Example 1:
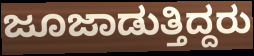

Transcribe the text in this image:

ಜೂಜಾಡುತ್ತಿದ್ದರು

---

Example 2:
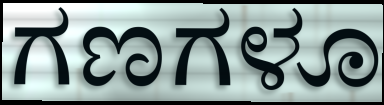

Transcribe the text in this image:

ಗಣಗಳೂ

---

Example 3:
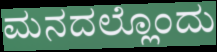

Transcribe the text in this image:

ಮನದಲ್ಲೊಂದು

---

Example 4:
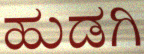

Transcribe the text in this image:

ಹುಡಗಿ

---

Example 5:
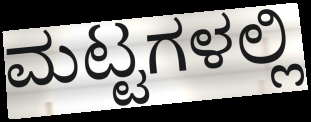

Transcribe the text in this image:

ಮಟ್ಟಗಳಲ್ಲಿ